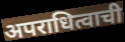
अपराधित्वाची